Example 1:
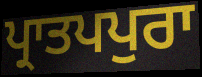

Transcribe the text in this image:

ਪ੍ਰਾਤਪਪੁਰਾ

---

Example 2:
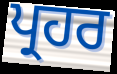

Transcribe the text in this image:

ਪ੍ਰਹਰ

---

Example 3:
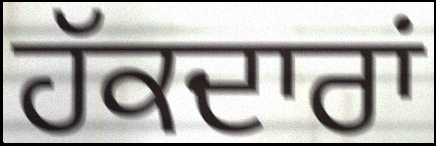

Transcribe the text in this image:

ਹੱਕਦਾਰਾਂ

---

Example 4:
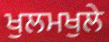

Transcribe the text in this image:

ਖੁਲਮਖੁਲੇ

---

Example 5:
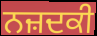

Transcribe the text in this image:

ਨਜ਼ਦਕੀ